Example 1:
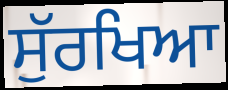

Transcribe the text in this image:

ਸੁੱਰਖਿਆ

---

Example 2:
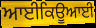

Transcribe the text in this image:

ਆਈਕਿਊਆਈ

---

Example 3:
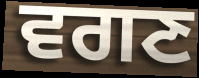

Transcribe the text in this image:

ਵਗਣ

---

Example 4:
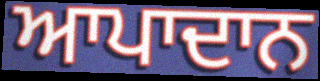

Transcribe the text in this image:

ਆਪਾਦਾਨ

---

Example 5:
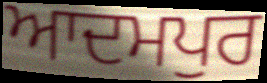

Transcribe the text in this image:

ਆਦਮਪੁਰ